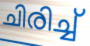
ചിരിച്ച്